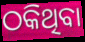
ଠକିଥିବା